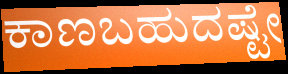
ಕಾಣಬಹುದಷ್ಟೇ